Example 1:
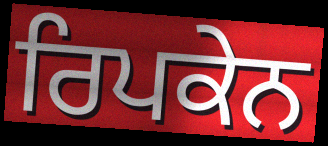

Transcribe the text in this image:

ਰਿਪਕੇਨ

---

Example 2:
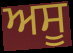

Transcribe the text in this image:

ਅਸੂ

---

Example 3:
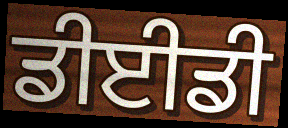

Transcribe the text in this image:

ਡੀਈਡੀ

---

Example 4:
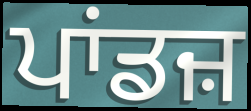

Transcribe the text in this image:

ਪਾਂਡਜ਼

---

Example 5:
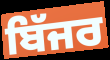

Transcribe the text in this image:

ਬਿੱਜਰ